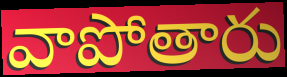
వాపోతారు